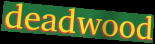
deadwood